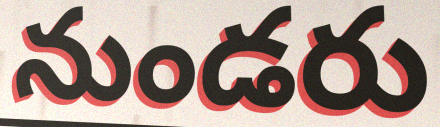
నుండరు